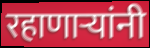
रहाणार्‍यांनी